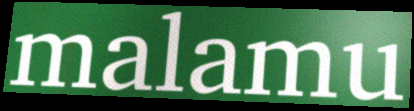
malamu